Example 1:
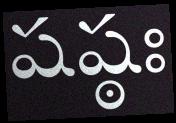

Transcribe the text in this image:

షష్ఠః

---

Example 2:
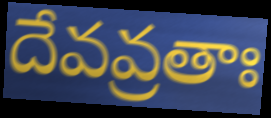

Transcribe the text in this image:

దేవవ్రతాః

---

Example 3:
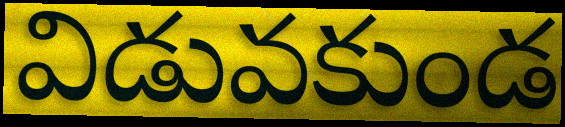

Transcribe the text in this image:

విడువకుండ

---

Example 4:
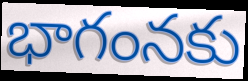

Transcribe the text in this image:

భాగంనకు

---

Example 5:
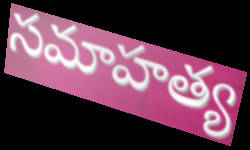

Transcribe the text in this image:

సమాహత్య